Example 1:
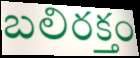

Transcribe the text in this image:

బలిరక్తం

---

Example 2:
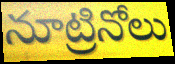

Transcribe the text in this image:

నూట్రినోలు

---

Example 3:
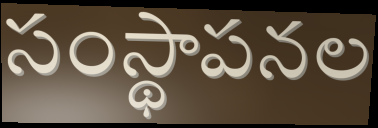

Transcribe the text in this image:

సంస్థాపనల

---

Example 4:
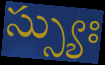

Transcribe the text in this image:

స్స్యుః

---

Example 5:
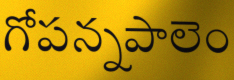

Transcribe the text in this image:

గోపన్నపాలెం